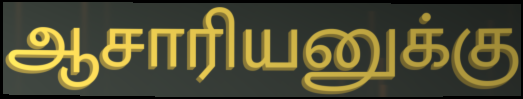
ஆசாரியனுக்கு